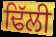
ਢਿੱਲੀ